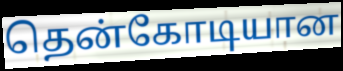
தென்கோடியான